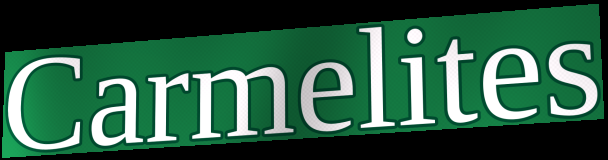
Carmelites